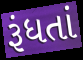
રૂંધતાં